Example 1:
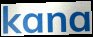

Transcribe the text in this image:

kana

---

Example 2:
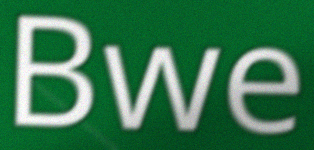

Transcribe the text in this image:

Bwe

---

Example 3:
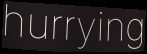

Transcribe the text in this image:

hurrying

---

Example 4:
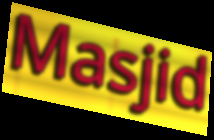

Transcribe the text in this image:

Masjid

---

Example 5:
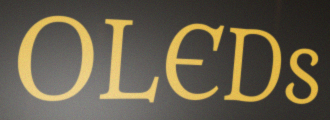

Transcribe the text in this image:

OLEDs